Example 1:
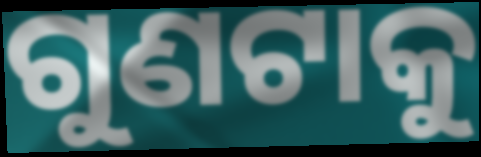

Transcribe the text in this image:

ଗୁଣଟାକୁ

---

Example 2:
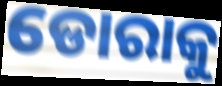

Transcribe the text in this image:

ଡୋରାକୁ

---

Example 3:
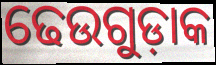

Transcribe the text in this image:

ଢେଉଗୁଡ଼ାକ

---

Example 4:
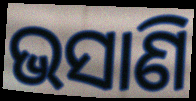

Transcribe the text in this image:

ଭସାଣି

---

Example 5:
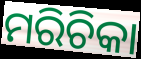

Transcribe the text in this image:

ମରିଚିକା